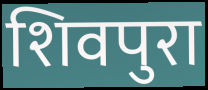
शिवपुरा